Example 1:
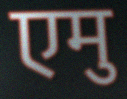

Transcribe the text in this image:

एमु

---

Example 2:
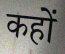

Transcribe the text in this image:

कहों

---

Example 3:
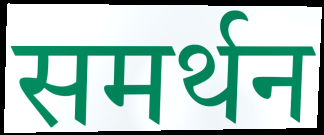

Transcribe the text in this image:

समर्थन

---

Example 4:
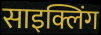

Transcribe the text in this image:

साइक्लिंग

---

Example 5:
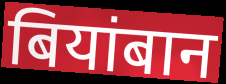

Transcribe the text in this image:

बियांबान